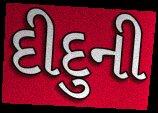
દીદુની